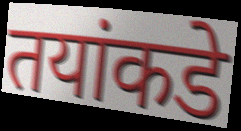
तयांकडे